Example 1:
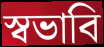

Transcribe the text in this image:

স্বভাবি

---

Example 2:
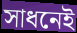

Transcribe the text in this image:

সাধনেই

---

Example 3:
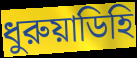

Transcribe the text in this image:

ধুরুয়াডিহি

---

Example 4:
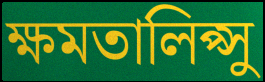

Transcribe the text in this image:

ক্ষমতালিপ্সু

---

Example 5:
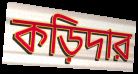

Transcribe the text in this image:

কড়িদার